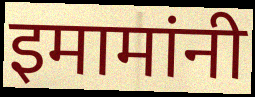
इमामांनी